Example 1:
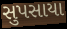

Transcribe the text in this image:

સુપસાયા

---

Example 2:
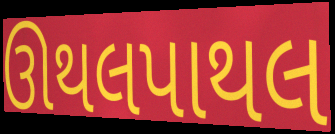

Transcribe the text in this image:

ઊથલપાથલ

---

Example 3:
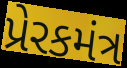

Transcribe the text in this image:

પ્રેરકમંત્ર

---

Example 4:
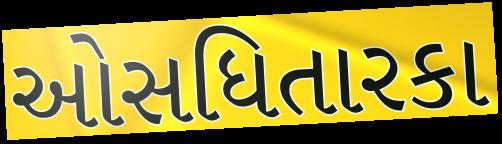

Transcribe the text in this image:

ઓસધિતારકા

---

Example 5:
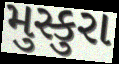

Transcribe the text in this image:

મુસ્કુરા